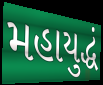
મહાયુદ્ધં